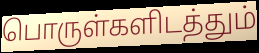
பொருள்களிடத்தும்